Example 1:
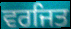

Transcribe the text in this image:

ਵਰਜਿਤ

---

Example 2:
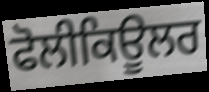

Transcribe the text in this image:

ਫੋਲੀਕਿਊਲਰ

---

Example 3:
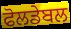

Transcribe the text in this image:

ਫੋਲਡੇਬਲ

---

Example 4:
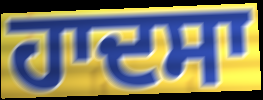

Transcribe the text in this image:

ਹਾਦਸਾ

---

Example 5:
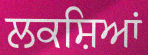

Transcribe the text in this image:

ਲਕਸ਼ਿਆਂ